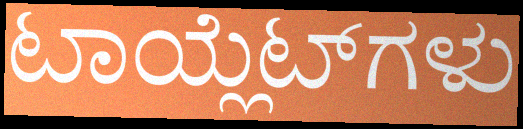
ಟಾಯ್ಲೆಟ್‌ಗಳು